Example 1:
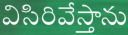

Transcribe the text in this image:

విసిరివేస్తాను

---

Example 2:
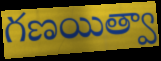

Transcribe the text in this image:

గణయిత్వా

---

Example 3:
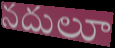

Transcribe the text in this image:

నదులూ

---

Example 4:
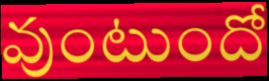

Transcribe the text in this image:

వుంటుందో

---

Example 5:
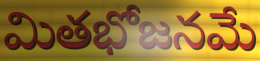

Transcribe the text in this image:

మితభోజనమే